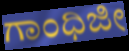
ಗಾಂಧಿಜೀ